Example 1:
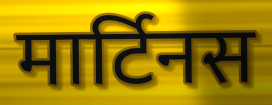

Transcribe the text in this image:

मार्टिनस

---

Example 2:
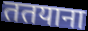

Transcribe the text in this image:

ततयाना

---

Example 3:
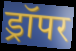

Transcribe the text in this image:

ड्रॉपर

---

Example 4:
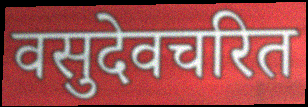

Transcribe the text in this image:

वसुदेवचरित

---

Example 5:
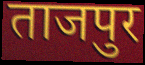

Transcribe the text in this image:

ताजपुर